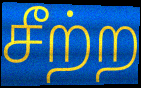
சீற்ற